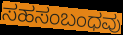
ಸಹಸಂಬಂಧವು